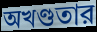
অখণ্ডতার